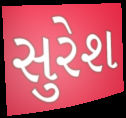
સુરેશ